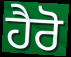
ਹੈਰੋ